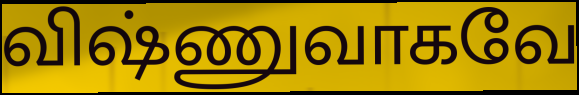
விஷ்ணுவாகவே